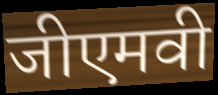
जीएमवी